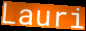
Lauri